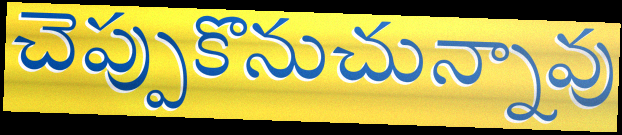
చెప్పుకొనుచున్నావు